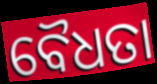
ବୈଧତା